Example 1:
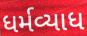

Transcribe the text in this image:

ધર્મવ્યાધ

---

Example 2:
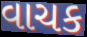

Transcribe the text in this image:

વાચક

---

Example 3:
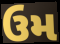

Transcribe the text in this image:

ઉમ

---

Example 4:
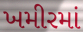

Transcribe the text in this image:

ખમીરમાં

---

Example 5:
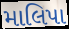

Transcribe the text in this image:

માલિપા